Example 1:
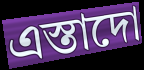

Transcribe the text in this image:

এস্তাদো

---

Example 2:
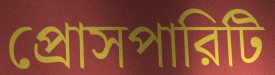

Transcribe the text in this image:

প্রোসপারিটি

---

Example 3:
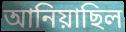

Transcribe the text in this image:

আনিয়াছিল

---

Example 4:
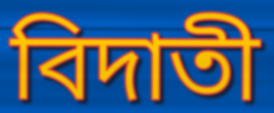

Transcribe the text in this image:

বিদাতী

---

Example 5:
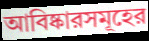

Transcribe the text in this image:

আবিষ্কারসমূহের